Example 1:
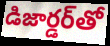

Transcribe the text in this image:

డిజార్డర్‌తో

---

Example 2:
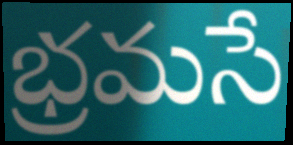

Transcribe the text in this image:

భ్రమసే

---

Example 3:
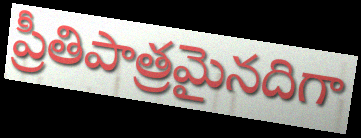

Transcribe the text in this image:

ప్రీతిపాత్రమైనదిగా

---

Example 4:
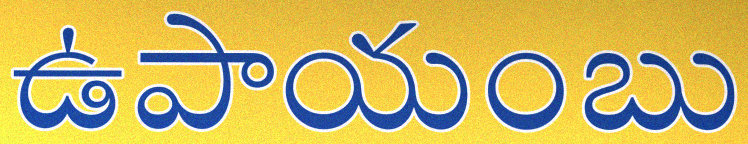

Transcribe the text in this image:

ఉపాయంబు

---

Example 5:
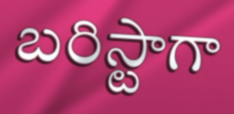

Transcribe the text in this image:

బరిస్టాగా